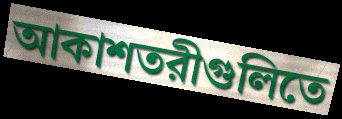
আকাশতরীগুলিতে